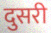
दुसरी